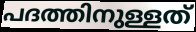
പദത്തിനുള്ളത്